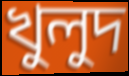
খুলুদ